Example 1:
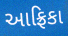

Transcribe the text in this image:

આફ્રિકા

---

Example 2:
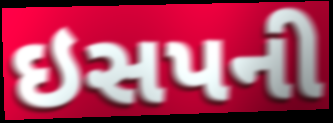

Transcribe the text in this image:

ઇસપની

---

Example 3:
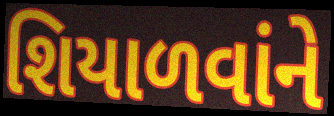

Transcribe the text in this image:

શિયાળવાંને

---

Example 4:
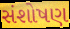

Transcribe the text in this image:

સંશોષણ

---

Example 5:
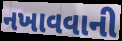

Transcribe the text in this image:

નખાવવાની